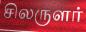
சிலருளர்